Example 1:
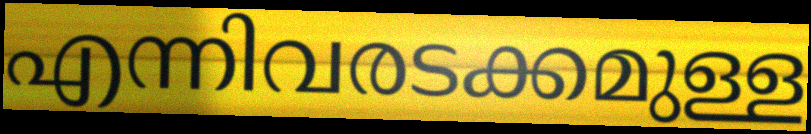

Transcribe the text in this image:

എന്നിവരടക്കമുള്ള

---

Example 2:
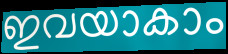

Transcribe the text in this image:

ഇവയാകാം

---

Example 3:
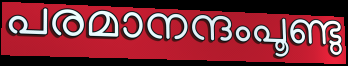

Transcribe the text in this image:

പരമാനന്ദംപൂണ്ടു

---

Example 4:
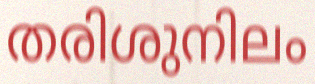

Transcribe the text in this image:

തരിശുനിലം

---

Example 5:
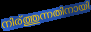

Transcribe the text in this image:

നിര്ത്തുന്നതിനായി